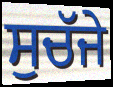
ਸੁਚੱਜੇ